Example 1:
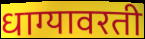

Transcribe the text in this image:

धाग्यावरती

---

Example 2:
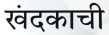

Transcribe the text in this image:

खंदकाची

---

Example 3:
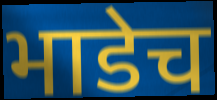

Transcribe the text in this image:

भाडेच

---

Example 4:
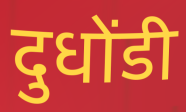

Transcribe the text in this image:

दुधोंडी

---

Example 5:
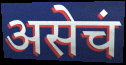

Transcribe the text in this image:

असेचं